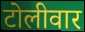
टोलीवार